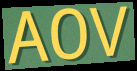
AOV